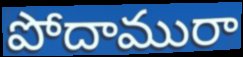
పోదామురా